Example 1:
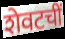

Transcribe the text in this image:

शेवटचीं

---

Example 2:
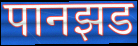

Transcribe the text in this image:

पानझड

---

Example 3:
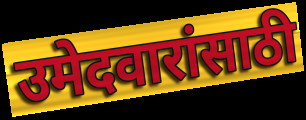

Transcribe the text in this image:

उमेदवारांसाठी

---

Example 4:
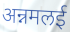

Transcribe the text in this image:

अन्नमलई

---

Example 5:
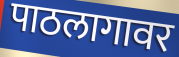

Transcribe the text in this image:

पाठलागावर